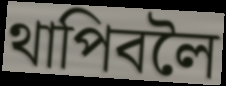
থাপিবলৈ